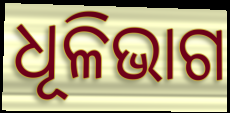
ଧୂଳିଭାଗ